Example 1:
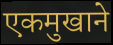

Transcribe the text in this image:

एकमुखाने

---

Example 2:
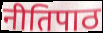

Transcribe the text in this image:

नीतिपाठ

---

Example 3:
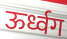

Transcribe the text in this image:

ऊर्ध्वग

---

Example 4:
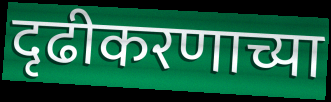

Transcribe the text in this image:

दृढीकरणाच्या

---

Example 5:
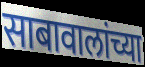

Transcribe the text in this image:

साबावालांच्या